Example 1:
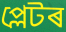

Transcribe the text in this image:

প্লেটৰ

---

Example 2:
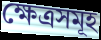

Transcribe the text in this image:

ক্ষেত্ৰসমূহ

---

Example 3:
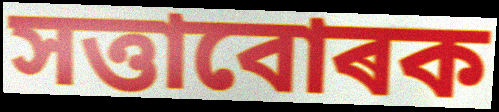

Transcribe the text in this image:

সত্তাবোৰক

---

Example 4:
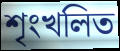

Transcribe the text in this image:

শৃংখলিত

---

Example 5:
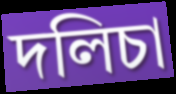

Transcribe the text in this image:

দলিচা